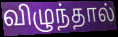
விழுந்தால்